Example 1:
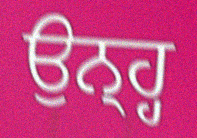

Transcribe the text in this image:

ਉਨ੍ਹ੍ਹ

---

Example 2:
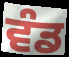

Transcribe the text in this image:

ਵੰਡ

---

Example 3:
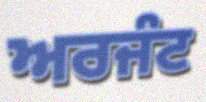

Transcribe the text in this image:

ਅਰਜੰਟ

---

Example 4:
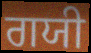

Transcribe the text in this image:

ਗਯੀ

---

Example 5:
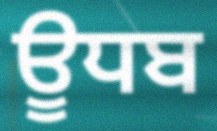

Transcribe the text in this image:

ਊਧਬ